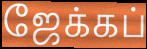
ஜேக்கப்